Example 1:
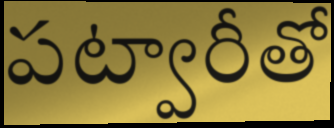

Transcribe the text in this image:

పట్వారీతో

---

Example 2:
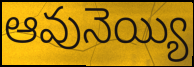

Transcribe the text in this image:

ఆవునెయ్యి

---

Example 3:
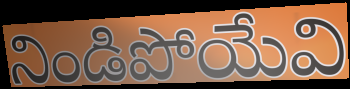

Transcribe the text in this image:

నిండిపోయేవి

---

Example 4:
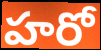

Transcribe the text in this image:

హరో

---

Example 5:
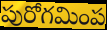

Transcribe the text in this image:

పురోగమింప